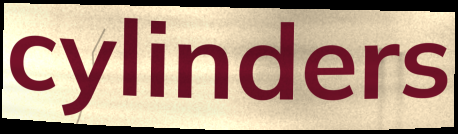
cylinders